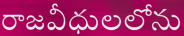
రాజవీధులలోను